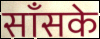
साँसके